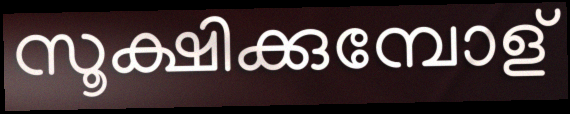
സൂക്ഷിക്കുമ്പോള്